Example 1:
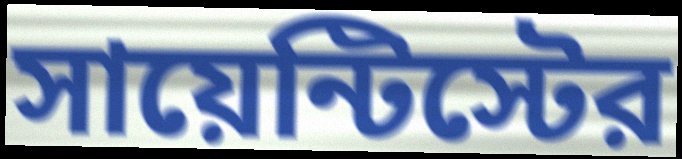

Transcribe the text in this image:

সায়েন্টিস্টের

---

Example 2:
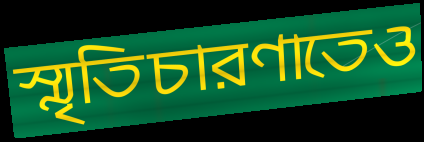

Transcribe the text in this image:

স্মৃতিচারণাতেও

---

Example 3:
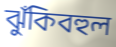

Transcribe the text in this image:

ঝুঁকিবহুল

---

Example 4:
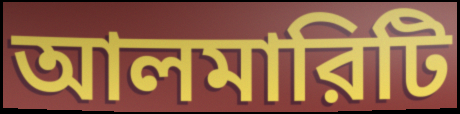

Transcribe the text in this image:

আলমারিটি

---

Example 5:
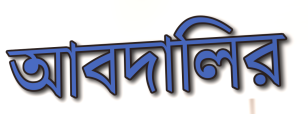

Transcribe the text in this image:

আবদালির